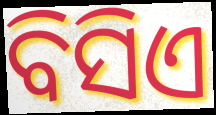
ବିସିଏ